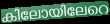
കിലോയിലേറെ